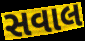
સવાલ